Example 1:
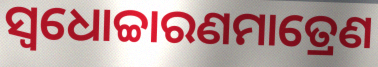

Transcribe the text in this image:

ସ୍ଵଧୋଚ୍ଚାରଣମାତ୍ରେଣ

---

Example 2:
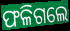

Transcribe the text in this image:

ଫଳିଗଲେ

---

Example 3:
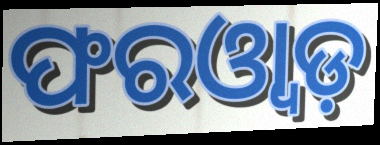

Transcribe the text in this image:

ଫରଓ୍ୱାଡ଼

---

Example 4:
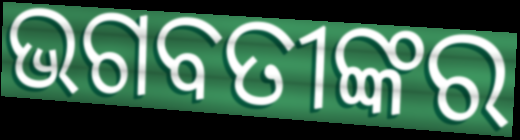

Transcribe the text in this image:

ଭଗବତୀଙ୍କର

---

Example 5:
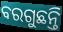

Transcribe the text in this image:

ବରଗୁଛନ୍ତି